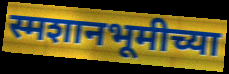
स्मशानभूमीच्या